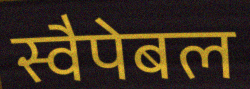
स्वैपेबल